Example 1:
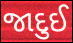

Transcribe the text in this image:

જાદુઈ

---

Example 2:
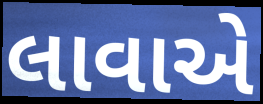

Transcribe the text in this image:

લાવાએ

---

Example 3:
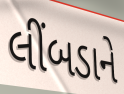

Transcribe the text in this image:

લીંબડાને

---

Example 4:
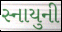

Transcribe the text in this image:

સ્નાયુની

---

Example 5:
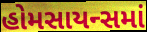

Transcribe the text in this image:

હોમસાયન્સમાં